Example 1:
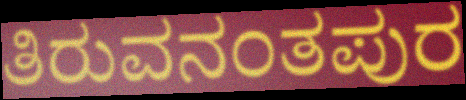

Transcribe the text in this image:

ತಿರುವನಂತಪುರ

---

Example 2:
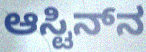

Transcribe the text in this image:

ಆಸ್ಟಿನ್‌ನ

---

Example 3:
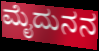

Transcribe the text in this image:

ಮೈದುನನ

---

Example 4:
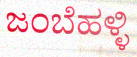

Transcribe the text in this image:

ಜಂಬೆಹಳ್ಳಿ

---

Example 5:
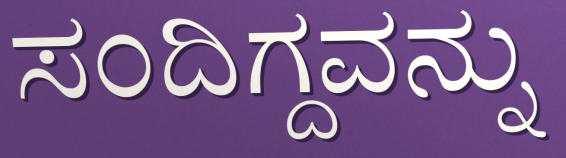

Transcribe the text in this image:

ಸಂದಿಗ್ದವನ್ನು